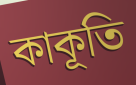
কাকূতি